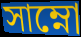
সাম্নো